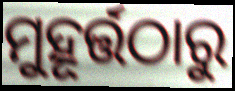
ମୁହୂର୍ତ୍ତଠାରୁ